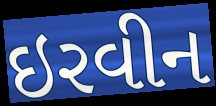
ઇરવીન